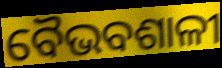
ବୈଭବଶାଳୀ